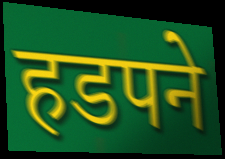
हडपने